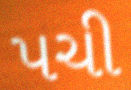
પચી